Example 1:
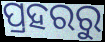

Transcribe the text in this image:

ପ୍ରହରରୁ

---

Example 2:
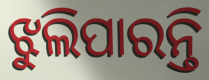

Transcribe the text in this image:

ଝୁଲିପାରନ୍ତି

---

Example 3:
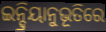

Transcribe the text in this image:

ଇନ୍ଦ୍ରିୟାନୁଭୂତିରେ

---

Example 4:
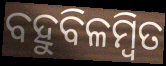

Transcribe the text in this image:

ବହୁବିଳମ୍ବିତ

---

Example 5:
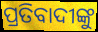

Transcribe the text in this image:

ପ୍ରତିବାଦୀଙ୍କୁ